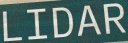
LIDAR